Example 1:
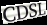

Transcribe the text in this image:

CDSL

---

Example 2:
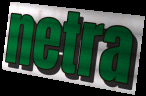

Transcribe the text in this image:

netra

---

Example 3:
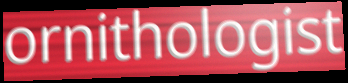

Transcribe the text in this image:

ornithologist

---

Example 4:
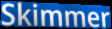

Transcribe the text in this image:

Skimmer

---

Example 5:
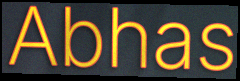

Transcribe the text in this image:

Abhas